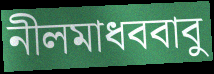
নীলমাধববাবু